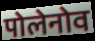
पोलेनोव